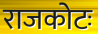
राजकोटः